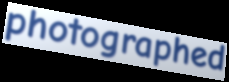
photographed